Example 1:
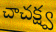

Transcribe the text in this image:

చాచక్ష్వ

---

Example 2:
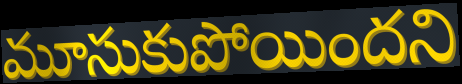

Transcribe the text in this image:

మూసుకుపోయిందని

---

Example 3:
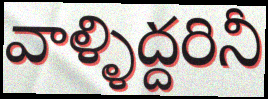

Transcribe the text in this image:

వాళ్ళిద్దరినీ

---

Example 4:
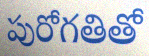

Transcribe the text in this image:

పురోగతితో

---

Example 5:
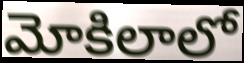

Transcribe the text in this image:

మోకిలాలో